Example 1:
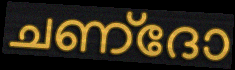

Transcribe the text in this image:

ചണ്ദോ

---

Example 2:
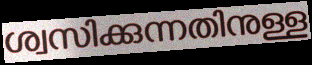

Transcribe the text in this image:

ശ്വസിക്കുന്നതിനുള്ള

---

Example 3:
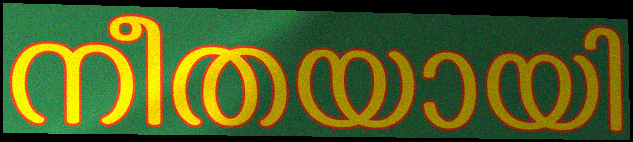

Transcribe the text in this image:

നീതയായി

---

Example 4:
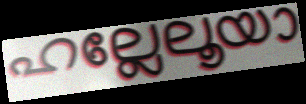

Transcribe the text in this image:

ഹല്ലേലൂയാ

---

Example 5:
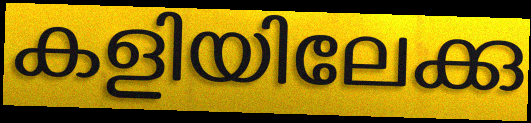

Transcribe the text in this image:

കളിയിലേക്കു